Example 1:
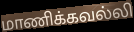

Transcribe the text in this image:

மாணிக்கவல்லி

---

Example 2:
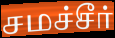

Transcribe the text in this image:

சமச்சீர்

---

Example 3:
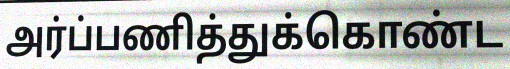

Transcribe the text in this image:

அர்ப்பணித்துக்கொண்ட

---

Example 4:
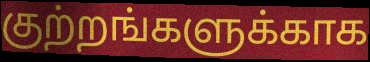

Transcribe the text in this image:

குற்றங்களுக்காக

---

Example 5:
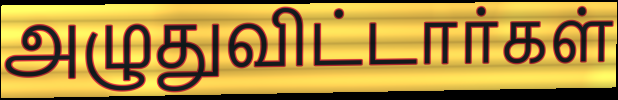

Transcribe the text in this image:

அழுதுவிட்டார்கள்